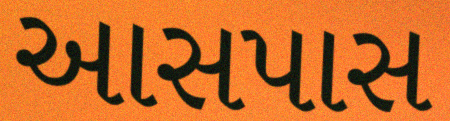
આસપાસ